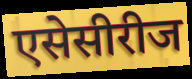
एसेसीरीज